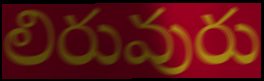
లిరువురు